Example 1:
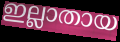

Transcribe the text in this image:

ഇല്ലാതായ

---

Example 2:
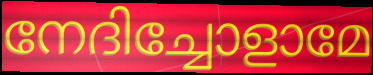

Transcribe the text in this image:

നേദിച്ചോളാമേ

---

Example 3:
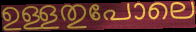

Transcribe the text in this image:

ഉള്ളതുപോലെ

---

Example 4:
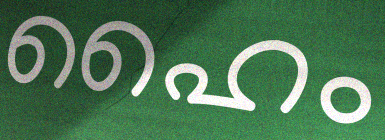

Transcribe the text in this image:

ഹൈം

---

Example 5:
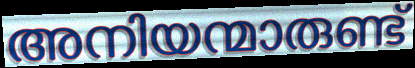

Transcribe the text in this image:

അനിയന്മാരുണ്ട്